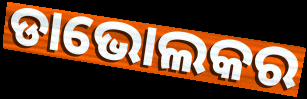
ଡାଭୋଲକର